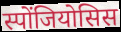
स्पोंजियोसिस